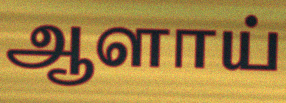
ஆளாய்